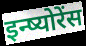
इन्ष्योरेंस